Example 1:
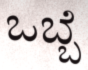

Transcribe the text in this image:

ಒಬ್ಬೆ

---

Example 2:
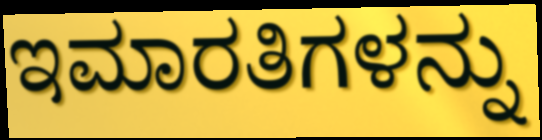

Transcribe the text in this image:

ಇಮಾರತಿಗಳನ್ನು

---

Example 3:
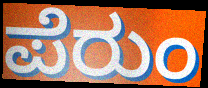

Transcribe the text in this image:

ಪೆರುಂ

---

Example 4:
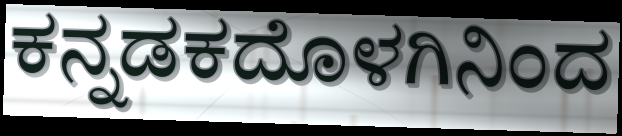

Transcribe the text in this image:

ಕನ್ನಡಕದೊಳಗಿನಿಂದ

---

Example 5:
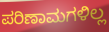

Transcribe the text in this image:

ಪರಿಣಾಮಗಳಿಲ್ಲ